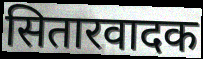
सितारवादक